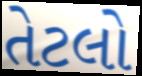
તેટલો